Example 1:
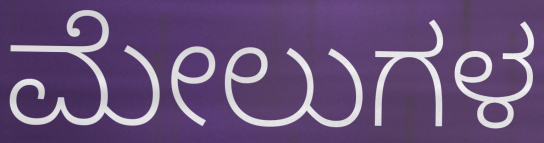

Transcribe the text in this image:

ಮೇಲುಗಳ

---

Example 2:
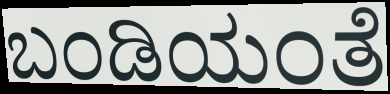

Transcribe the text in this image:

ಬಂಡಿಯಂತೆ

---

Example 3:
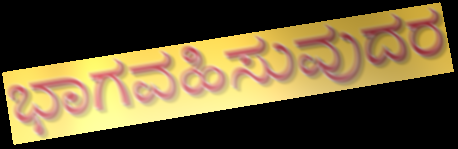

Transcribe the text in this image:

ಭಾಗವಹಿಸುವುದರ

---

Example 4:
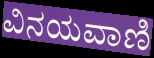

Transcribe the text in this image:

ವಿನಯವಾಣಿ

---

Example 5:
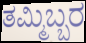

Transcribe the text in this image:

ತಮ್ಮಿಬ್ಬರ